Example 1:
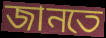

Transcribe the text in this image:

জানতে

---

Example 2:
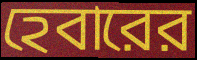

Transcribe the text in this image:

হেবারের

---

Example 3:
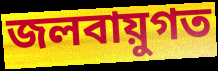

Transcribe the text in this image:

জলবায়ুগত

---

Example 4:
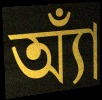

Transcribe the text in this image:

অ্যাঁ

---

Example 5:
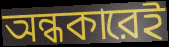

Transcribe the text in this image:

অন্ধকারেই